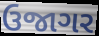
ઉજાગર